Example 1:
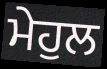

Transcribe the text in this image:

ਮੇਹੁਲ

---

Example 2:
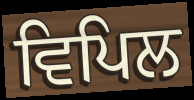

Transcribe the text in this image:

ਵਿਪਿਲ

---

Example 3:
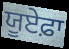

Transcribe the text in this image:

ਯੂਏਫ਼ਾ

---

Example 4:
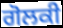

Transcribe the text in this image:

ਗੋਲਕੀ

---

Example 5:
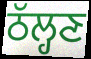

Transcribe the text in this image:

ਠੱਲ੍ਹਣ